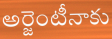
అర్జెంటీనాకు